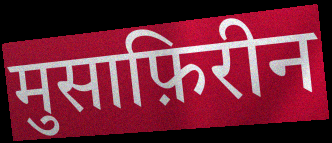
मुसाफ़िरीन